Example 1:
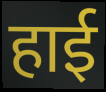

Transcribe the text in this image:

हाई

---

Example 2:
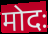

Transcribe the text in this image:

मोदः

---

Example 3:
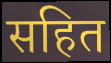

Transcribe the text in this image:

सहित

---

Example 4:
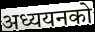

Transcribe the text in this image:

अध्ययनको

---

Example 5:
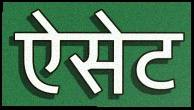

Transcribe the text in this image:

ऐसेट